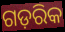
ଗଡ଼ରିକ